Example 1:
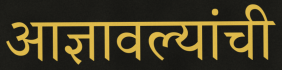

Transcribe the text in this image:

आज्ञावल्यांची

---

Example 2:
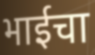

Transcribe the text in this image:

भाईचा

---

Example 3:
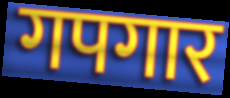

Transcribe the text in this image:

गपगार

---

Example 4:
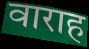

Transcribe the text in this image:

वाराह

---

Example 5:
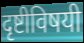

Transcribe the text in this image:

दृष्टीविषयी